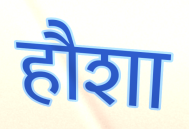
हौशा